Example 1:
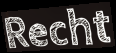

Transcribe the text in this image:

Recht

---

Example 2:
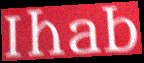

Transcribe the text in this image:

Ihab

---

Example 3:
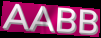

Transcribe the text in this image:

AABB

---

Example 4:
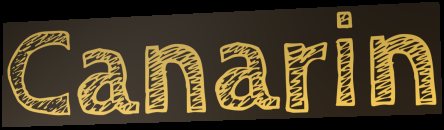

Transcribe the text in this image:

Canarin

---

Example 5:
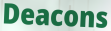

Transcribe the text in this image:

Deacons